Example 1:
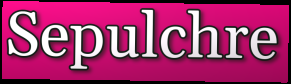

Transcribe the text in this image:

Sepulchre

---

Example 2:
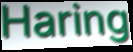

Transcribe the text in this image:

Haring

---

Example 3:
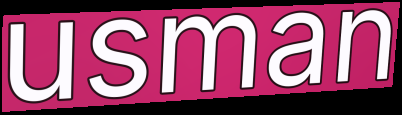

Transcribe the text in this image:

usman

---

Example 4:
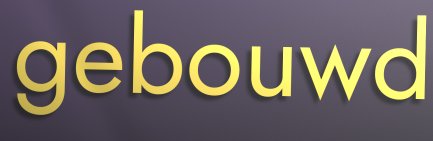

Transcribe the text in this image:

gebouwd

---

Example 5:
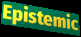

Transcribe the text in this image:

Epistemic